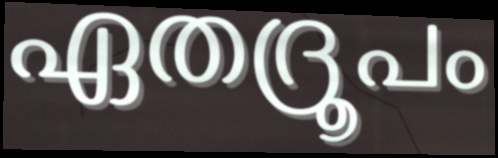
ഏതദ്രൂപം